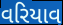
વરિયાવ